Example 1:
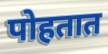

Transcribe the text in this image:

पोहतात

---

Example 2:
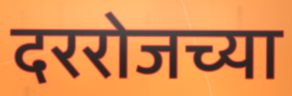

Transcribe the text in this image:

दररोजच्या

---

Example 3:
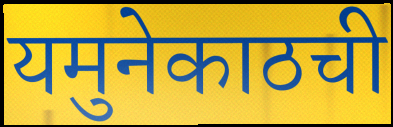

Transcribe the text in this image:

यमुनेकाठची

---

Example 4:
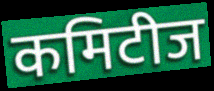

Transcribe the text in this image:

कमिटीज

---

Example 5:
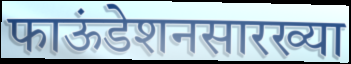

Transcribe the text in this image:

फाऊंडेशनसारख्या